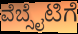
ವೆಬ್ಸೈಟಿಗೆ